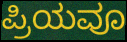
ಪ್ರಿಯವೂ